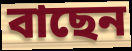
বাছেন